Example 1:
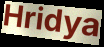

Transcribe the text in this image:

Hridya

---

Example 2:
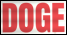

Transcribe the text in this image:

DOGE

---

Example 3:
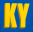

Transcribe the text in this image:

KY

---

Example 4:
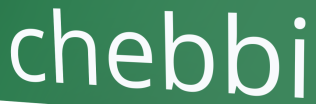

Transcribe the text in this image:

chebbi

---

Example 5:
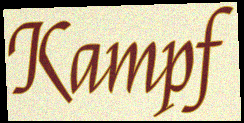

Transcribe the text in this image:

Kampf